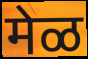
मेळ